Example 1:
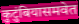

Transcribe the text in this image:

कुटुंबियासमवेत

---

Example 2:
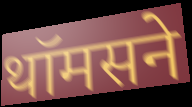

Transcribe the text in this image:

थॉमसने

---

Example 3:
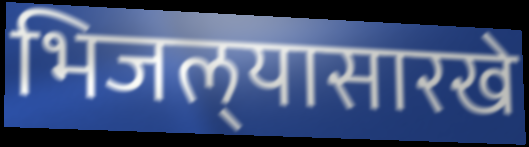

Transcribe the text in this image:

भिजल्यासारखे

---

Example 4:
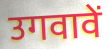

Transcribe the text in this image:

उगवावें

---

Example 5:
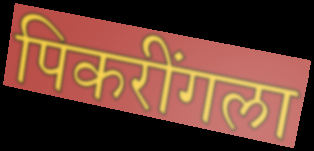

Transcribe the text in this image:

पिकरींगला